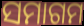
ସମାଗମ